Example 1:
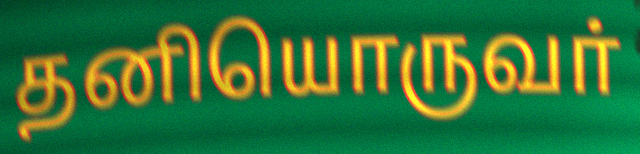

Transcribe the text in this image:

தனியொருவர்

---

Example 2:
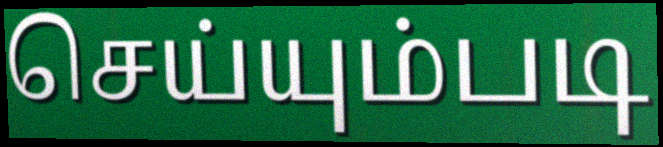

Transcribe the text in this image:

செய்யும்படி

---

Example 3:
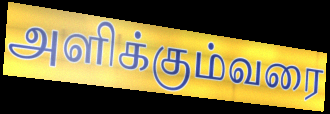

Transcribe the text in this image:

அளிக்கும்வரை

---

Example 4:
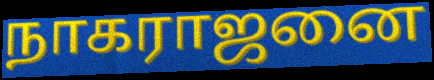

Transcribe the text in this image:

நாகராஜனை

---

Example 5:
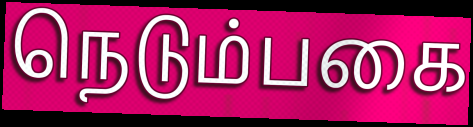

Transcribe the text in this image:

நெடும்பகை